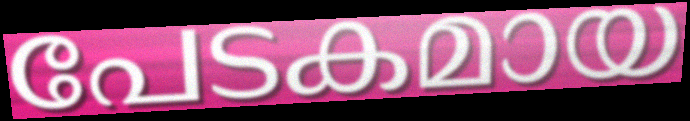
പേടകമായ